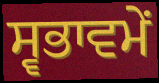
ਸ੍ਵਭਾਵਮੇਂ